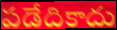
పడేదికాదు